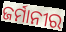
ଜର୍ମାନୀର